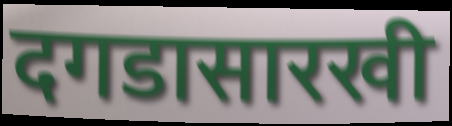
दगडासारखी